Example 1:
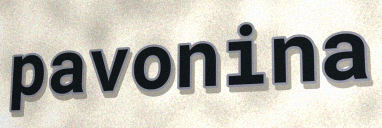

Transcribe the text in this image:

pavonina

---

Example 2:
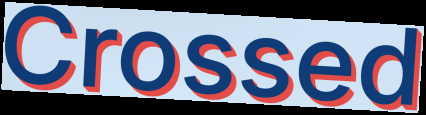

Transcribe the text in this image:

Crossed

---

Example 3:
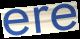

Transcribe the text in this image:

ere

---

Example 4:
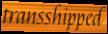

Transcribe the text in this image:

transshipped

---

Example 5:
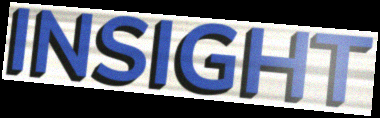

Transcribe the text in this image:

INSIGHT